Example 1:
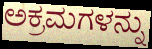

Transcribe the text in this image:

ಅಕ್ರಮಗಳನ್ನು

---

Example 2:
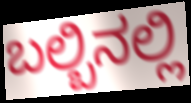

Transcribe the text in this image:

ಬಲ್ಬಿನಲ್ಲಿ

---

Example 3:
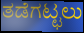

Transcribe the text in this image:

ತಡೆಗಟ್ಟಲು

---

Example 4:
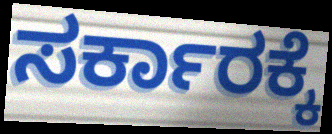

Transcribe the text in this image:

ಸರ್ಕಾರಕ್ಕೆ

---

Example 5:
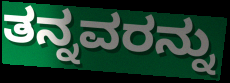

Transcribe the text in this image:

ತನ್ನವರನ್ನು